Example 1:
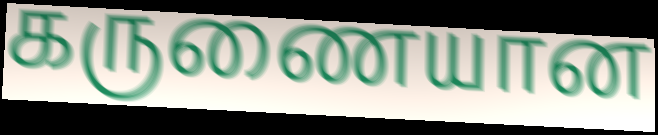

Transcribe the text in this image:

கருணையான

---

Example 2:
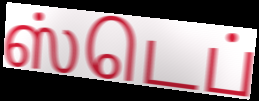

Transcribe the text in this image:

ஸ்டெப்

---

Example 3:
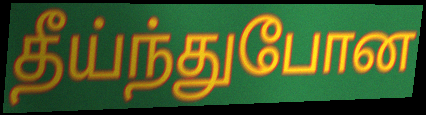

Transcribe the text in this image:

தீய்ந்துபோன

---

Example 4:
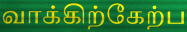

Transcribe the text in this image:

வாக்கிற்கேற்ப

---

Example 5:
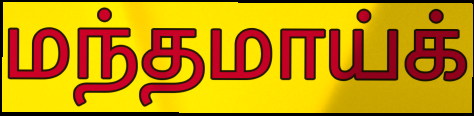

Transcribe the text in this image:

மந்தமாய்க்